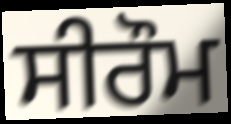
ਸੀਰੌਮ